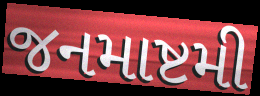
જનમાષ્ટમી